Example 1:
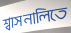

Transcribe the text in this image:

শ্বাসনালিতে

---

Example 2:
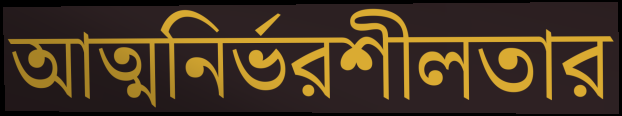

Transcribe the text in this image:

আত্মনির্ভরশীলতার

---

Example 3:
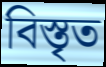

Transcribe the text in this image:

বিস্তৃত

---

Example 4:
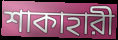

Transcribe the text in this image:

শাকাহারী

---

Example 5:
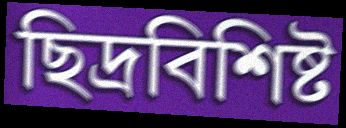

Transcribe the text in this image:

ছিদ্রবিশিষ্ট